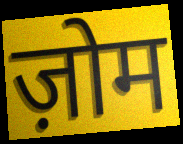
ज़ोम